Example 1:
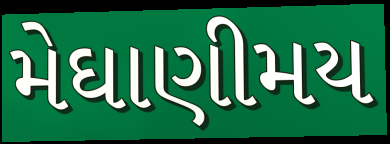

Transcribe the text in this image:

મેઘાણીમય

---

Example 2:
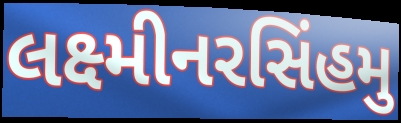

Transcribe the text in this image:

લક્ષ્મીનરસિંહમુ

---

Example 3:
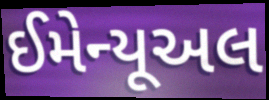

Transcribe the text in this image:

ઈમેન્યૂઅલ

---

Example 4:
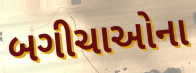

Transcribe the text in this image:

બગીચાઓના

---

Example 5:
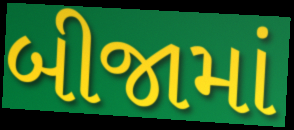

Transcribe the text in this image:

બીજામાં